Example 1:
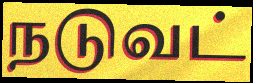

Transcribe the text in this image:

நடுவட்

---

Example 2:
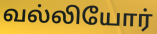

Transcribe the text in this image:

வல்லியோர்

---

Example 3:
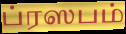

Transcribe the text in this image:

ப்ரஸபம்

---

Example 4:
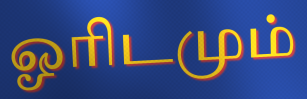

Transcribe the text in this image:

ஓரிடமும்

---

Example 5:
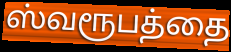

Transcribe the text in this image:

ஸ்வரூபத்தை